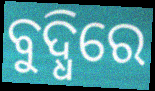
ବୁଦ୍ଧିରେ